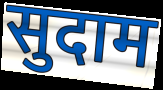
सुदाम